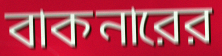
বাকনারের